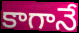
కాగానే